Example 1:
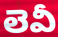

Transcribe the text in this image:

లెవీ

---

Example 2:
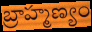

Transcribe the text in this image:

బ్రాహ్మణ్యం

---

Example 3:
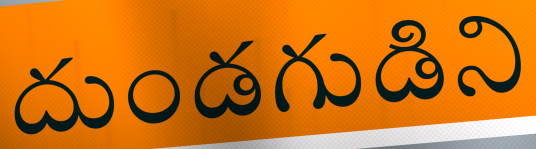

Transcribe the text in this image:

దుండగుడిని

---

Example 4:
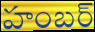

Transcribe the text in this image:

హంబర్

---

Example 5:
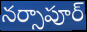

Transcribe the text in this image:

నర్సాపూర్